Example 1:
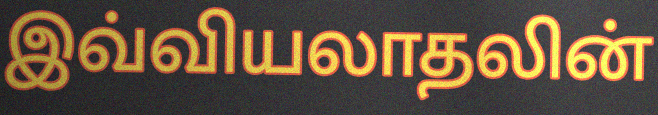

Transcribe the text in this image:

இவ்வியலாதலின்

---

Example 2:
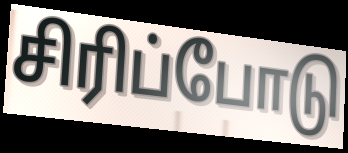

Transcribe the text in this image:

சிரிப்போடு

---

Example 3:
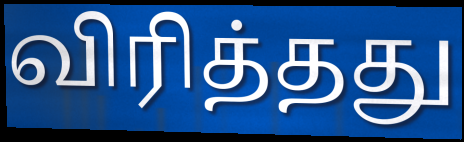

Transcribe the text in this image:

விரித்தது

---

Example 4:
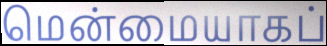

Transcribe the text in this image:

மென்மையாகப்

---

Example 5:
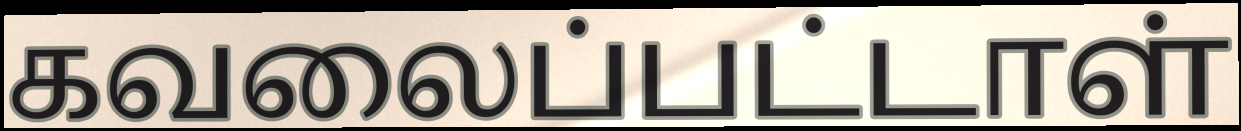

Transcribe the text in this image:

கவலைப்பட்டாள்